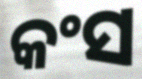
କଂସ